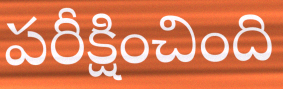
పరీక్షించింది